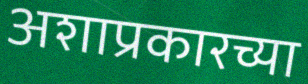
अशाप्रकारच्या